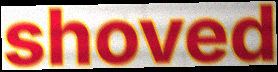
shoved